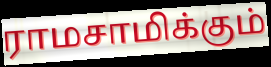
ராமசாமிக்கும்